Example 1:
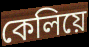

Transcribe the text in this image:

কেলিয়ে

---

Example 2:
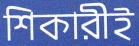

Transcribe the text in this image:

শিকারীই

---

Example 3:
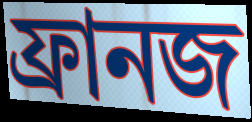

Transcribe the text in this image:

ফ্রানজ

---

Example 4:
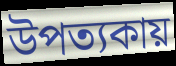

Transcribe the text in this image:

উপত্যকায়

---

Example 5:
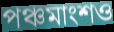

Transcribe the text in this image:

পঞ্চমাংশও